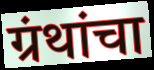
ग्रंथांचा